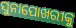
ସୁନାପୋଖରୀକୁ